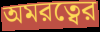
অমরত্বের